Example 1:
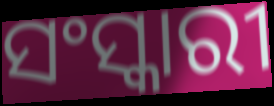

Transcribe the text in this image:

ସଂସ୍କାରୀ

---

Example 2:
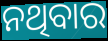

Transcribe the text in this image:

ନଥିବାର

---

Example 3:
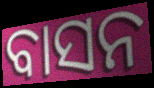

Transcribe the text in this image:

ବାସନ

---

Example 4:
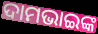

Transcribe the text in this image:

ଦାମଭାଇଙ୍କ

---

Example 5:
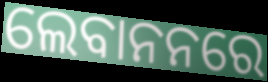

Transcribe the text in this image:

ଲେବାନନରେ